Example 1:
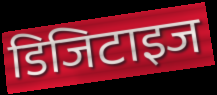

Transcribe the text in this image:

डिजिटाइज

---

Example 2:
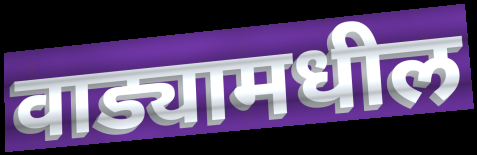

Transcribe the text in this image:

वाड्यामधील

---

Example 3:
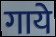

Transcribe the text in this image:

गाये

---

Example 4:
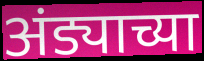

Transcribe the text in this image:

अंड्याच्या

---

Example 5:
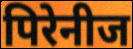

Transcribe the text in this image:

पिरेनीज